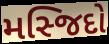
મસ્જિદો